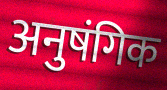
अनुषंगिक